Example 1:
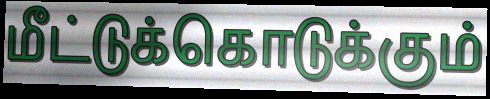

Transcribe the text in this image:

மீட்டுக்கொடுக்கும்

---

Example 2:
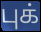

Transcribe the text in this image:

புக்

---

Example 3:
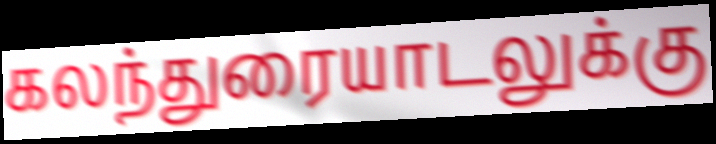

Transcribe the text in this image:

கலந்துரையாடலுக்கு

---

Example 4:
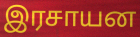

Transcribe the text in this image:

இரசாயன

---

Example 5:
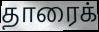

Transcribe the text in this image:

தாரைக்